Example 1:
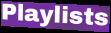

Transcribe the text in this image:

Playlists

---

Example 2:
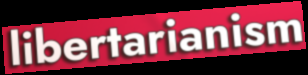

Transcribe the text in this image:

libertarianism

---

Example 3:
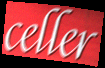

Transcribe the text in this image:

celler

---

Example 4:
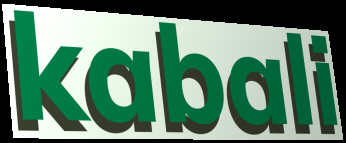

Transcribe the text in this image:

kabali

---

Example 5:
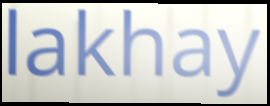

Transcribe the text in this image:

lakhay